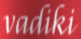
vadiki